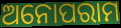
ଅନୋପରାମ